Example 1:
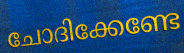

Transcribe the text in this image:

ചോദിക്കേണ്ടേ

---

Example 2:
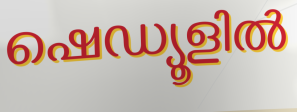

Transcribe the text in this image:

ഷെഡ്യൂളിൽ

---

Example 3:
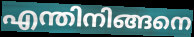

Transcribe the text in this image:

എന്തിനിങ്ങനെ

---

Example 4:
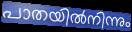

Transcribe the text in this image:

പാതയിൽനിന്നും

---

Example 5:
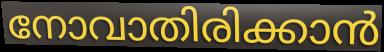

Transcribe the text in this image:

നോവാതിരിക്കാൻ